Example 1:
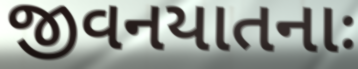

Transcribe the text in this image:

જીવનયાતનાઃ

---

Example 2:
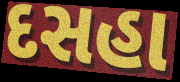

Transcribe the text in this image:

દસહા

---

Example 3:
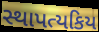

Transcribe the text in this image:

સ્થાપત્યકિય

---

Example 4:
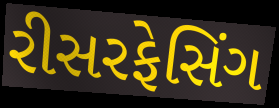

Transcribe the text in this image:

રીસરફેસિંગ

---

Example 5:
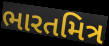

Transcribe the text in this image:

ભારતમિત્ર